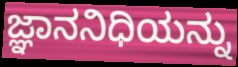
ಜ್ಞಾನನಿಧಿಯನ್ನು